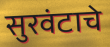
सुरवंटाचे